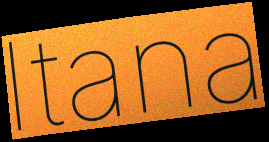
Itana